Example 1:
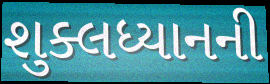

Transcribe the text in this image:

શુક્લધ્યાનની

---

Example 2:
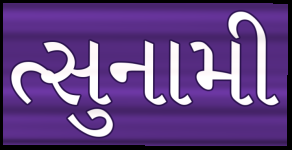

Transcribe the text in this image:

ત્સુનામી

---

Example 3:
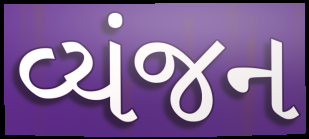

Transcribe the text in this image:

વ્યંજન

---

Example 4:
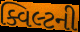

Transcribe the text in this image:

ક્વિલ્ટની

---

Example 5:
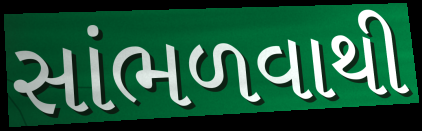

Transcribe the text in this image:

સાંભળવાથી